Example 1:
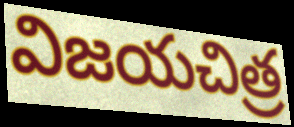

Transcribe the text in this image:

విజయచిత్ర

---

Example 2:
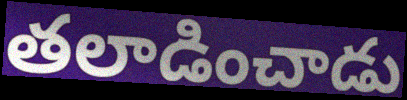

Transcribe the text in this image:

తలాడించాడు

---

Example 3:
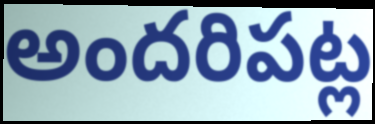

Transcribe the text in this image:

అందరిపట్ల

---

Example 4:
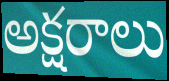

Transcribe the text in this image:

అక్షరాలు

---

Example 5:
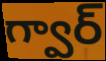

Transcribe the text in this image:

గ్వార్